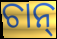
ଚାନ୍